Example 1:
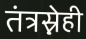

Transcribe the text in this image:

तंत्रस्नेही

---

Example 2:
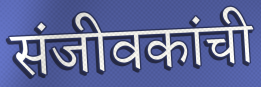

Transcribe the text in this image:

संजीवकांची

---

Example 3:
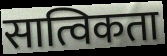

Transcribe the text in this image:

सात्विकता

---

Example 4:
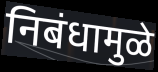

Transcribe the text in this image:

निबंधामुळे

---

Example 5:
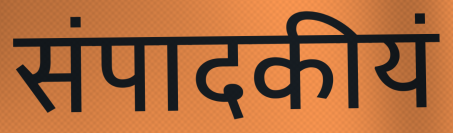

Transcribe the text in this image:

संपादकीयं